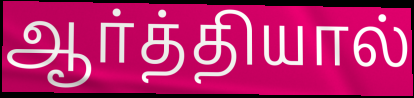
ஆர்த்தியால்